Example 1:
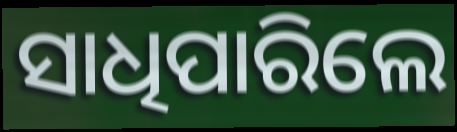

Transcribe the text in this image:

ସାଧିପାରିଲେ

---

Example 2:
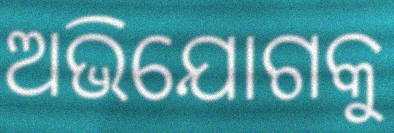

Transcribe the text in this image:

ଅଭିଯୋଗକୁ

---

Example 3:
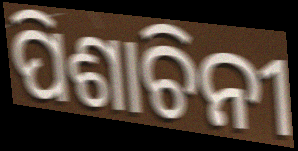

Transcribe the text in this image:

ପିଶାଚିନୀ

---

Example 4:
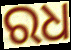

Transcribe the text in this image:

ରଧ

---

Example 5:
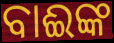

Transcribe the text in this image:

ବାଈଙ୍କ